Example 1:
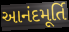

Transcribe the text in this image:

આનંદમૂર્તિ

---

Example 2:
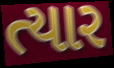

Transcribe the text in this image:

ત્‍યાર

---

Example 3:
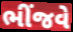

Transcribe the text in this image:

ભીંજવે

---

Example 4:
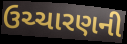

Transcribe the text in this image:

ઉચ્ચારણની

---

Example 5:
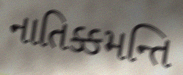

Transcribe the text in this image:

નાતિક્કમન્તિ